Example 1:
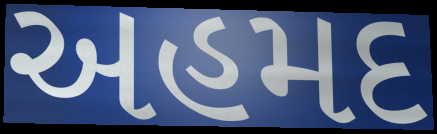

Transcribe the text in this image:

અહમદ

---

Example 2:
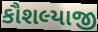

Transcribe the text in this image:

કૌશલ્યાજી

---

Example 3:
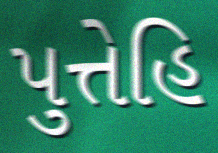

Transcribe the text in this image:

પુત્તેહિ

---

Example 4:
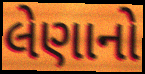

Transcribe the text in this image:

લેણાનો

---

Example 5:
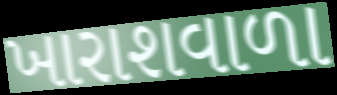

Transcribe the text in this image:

ખારાશવાળા